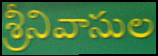
శ్రీనివాసుల